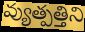
వ్యుత్పత్తిని